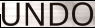
UNDO